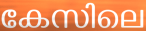
കേസിലെ